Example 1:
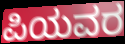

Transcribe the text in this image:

ಪಿಯವರ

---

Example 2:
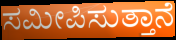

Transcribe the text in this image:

ಸಮೀಪಿಸುತ್ತಾನೆ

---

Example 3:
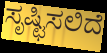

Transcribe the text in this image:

ಸೃಷ್ಟಿಸಲಿದೆ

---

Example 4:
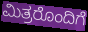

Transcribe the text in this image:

ಮಿತ್ರರೊಂದಿಗೆ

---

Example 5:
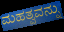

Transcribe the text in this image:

ಮಹತ್ವವನ್ನು